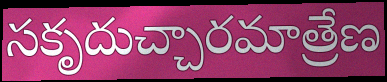
సకృదుచ్చారమాత్రేణ